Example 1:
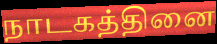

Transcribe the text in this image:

நாடகத்தினை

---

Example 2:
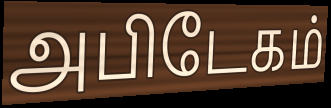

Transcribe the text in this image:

அபிடேகம்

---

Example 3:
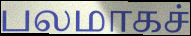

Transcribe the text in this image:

பலமாகச்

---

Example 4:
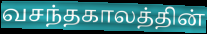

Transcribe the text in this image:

வசந்தகாலத்தின்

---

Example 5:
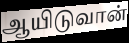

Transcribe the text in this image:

ஆயிடுவான்